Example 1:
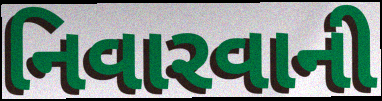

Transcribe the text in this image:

નિવારવાની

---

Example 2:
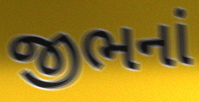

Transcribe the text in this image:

જીભનાં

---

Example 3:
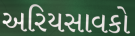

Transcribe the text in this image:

અરિયસાવકો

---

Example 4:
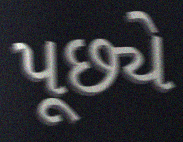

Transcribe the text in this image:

પૂછ્યે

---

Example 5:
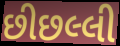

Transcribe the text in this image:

છીછલ્લી